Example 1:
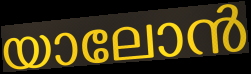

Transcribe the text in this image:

യാലോൻ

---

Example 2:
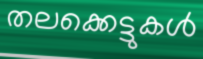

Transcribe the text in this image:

തലക്കെട്ടുകൾ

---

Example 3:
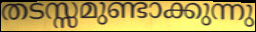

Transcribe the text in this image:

തടസ്സമുണ്ടാക്കുന്നു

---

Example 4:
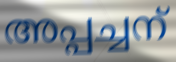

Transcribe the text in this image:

അപ്പച്ചന്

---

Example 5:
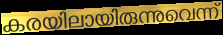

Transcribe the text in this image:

കരയിലായിരുന്നുവെന്ന്